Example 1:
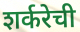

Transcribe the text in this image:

शर्करेची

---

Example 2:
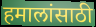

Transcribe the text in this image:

हमालांसाठी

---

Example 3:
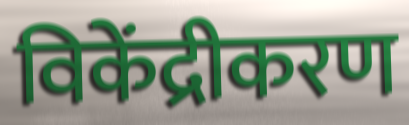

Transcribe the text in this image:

विकेंद्रीकरण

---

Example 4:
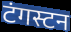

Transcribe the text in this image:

टंगस्टन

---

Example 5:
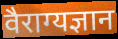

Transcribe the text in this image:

वैराग्यज्ञान